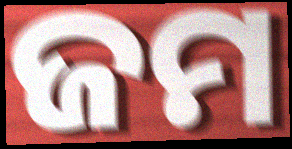
ଜମ